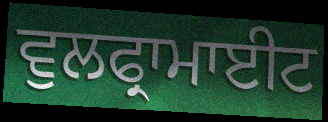
ਵੁਲਫ੍ਰਾਮਾਈਟ